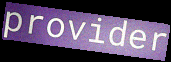
provider